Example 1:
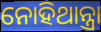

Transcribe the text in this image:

ନୋହିଥାନ୍ତ୍ରା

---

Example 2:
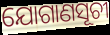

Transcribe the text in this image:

ଯୋଗାଣସୂଚୀ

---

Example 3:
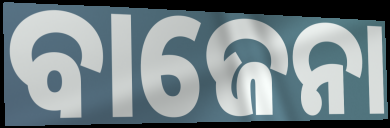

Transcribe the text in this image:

ବାଜେନା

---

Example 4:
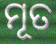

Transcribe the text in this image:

ମୂତ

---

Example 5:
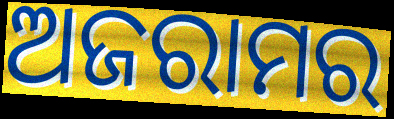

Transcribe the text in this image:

ଅଜରାମର